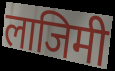
लाजिमी